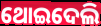
ଥୋଇଦେଲି